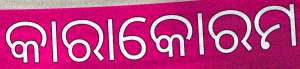
କାରାକୋରମ